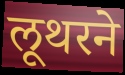
लूथरने